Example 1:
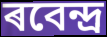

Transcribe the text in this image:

ৰবেন্দ্ৰ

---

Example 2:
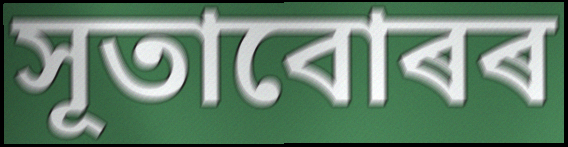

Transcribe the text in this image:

সূতাবোৰৰ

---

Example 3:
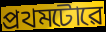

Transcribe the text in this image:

প্ৰথমটোৱে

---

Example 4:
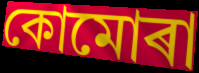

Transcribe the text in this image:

কোমোৰা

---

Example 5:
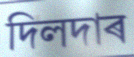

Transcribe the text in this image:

দিলদাৰ